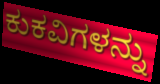
ಕುಕವಿಗಳನ್ನು